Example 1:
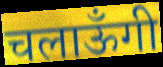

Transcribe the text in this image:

चलाऊँगी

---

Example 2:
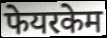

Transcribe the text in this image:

फेयरकेम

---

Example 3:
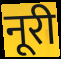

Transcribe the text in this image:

नूरी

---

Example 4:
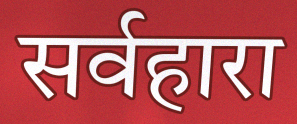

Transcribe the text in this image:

सर्वहारा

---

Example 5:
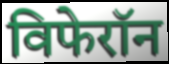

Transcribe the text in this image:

विफेरॉन